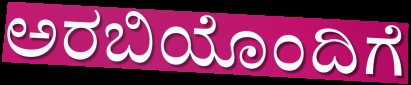
ಅರಬಿಯೊಂದಿಗೆ